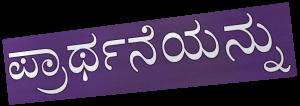
ಪ್ರಾರ್ಥನೆಯನ್ನು